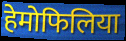
हेमोफिलिया